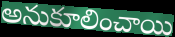
అనుకూలించాయి